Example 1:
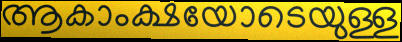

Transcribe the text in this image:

ആകാംക്ഷയോടെയുള്ള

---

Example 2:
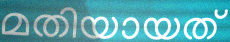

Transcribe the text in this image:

മതിയായത്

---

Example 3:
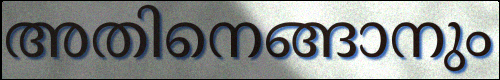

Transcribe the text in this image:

അതിനെങ്ങാനും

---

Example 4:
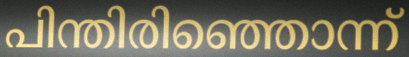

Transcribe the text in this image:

പിന്തിരിഞ്ഞൊന്ന്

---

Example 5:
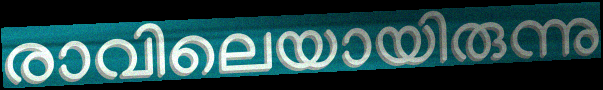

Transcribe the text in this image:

രാവിലെയായിരുന്നു